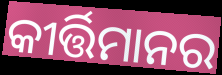
କୀର୍ତ୍ତିମାନର